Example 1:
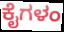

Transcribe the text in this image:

ಕೈಗಳಂ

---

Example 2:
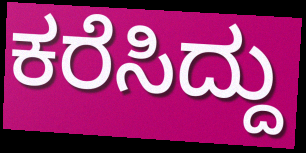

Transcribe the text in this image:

ಕರೆಸಿದ್ದು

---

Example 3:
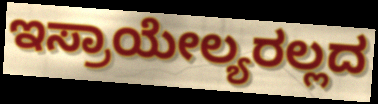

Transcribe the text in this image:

ಇಸ್ರಾಯೇಲ್ಯರಲ್ಲದ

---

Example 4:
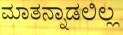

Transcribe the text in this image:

ಮಾತನ್ನಾಡಲಿಲ್ಲ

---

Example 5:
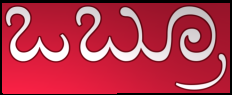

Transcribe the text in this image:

ಒಬ್ರೂ